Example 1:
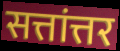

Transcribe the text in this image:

सत्तांत्तर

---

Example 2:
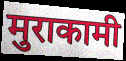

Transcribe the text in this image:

मुराकामी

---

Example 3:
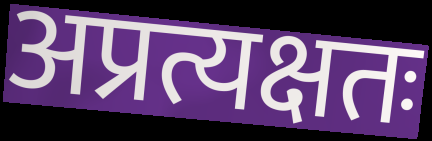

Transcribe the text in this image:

अप्रत्यक्षतः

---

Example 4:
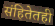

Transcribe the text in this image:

संहितेतही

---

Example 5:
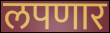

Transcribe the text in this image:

लपणार